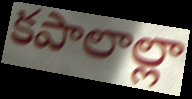
కపాలాల్లా